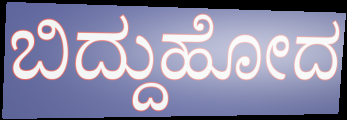
ಬಿದ್ದುಹೋದ